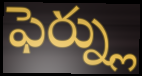
ఫెర్న్లు